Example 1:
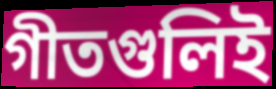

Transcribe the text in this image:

গীতগুলিই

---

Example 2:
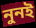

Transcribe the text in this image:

নুনই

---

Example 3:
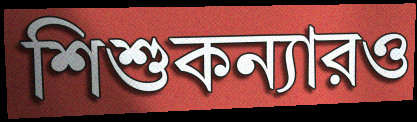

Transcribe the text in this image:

শিশুকন্যারও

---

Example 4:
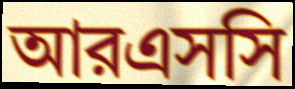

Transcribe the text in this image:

আরএসসি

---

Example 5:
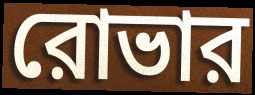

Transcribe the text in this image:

রোভার